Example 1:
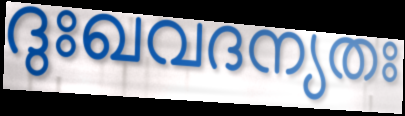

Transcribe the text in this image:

ദുഃഖവദന്യതഃ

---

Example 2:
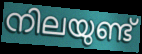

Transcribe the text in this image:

നിലയുണ്ട്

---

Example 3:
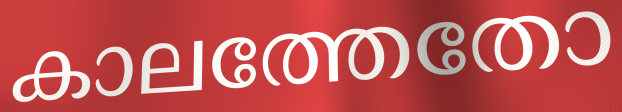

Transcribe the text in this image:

കാലത്തേതോ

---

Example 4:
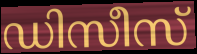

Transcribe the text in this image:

ഡിസീസ്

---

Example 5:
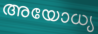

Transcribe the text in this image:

അയോധ്യ